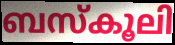
ബസ്കൂലി